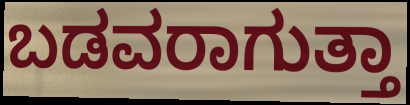
ಬಡವರಾಗುತ್ತಾ